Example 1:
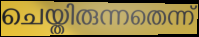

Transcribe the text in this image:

ചെയ്തിരുന്നതെന്ന്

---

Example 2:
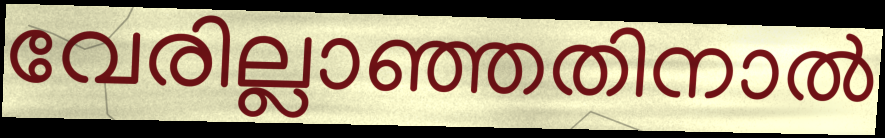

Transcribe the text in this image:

വേരില്ലാഞ്ഞതിനാൽ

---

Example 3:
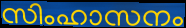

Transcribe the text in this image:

സിംഹാസനം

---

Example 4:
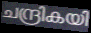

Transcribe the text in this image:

ചന്ദ്രികയി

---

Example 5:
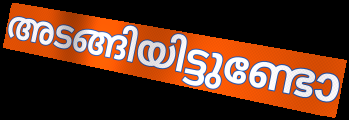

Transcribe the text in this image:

അടങ്ങിയിട്ടുണ്ടോ